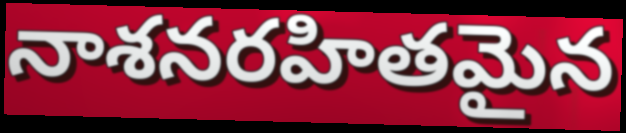
నాశనరహితమైన